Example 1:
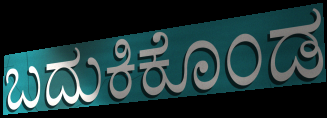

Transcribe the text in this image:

ಬದುಕಿಕೊಂಡ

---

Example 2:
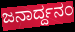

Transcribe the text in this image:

ಜನಾರ್ದ್ದನಂ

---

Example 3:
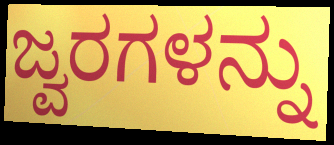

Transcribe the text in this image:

ಜ್ವರಗಳನ್ನು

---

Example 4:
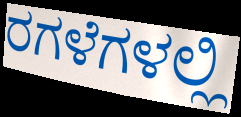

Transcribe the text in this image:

ರಗಳೆಗಳಲ್ಲಿ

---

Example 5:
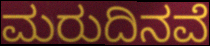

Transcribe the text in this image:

ಮರುದಿನವೆ